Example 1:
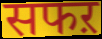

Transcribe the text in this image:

सफऱ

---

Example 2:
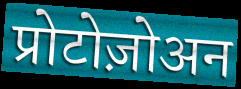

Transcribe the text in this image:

प्रोटोज़ोअन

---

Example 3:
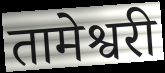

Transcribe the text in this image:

तामेश्वरी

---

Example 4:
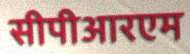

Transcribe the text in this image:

सीपीआरएम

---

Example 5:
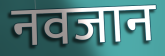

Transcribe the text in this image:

नवजान